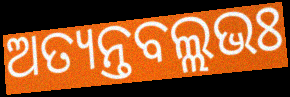
ଅତ୍ୟନ୍ତବଲ୍ଲଭଃ